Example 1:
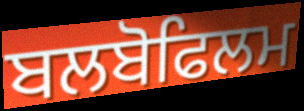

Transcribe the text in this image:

ਬਲਬੋਫਿਲਮ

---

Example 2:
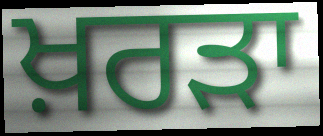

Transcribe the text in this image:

ਖ਼ਰੜਾ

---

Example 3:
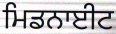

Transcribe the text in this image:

ਮਿਡਨਾਈਟ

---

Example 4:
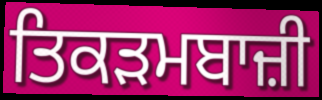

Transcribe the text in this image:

ਤਿਕੜਮਬਾਜ਼ੀ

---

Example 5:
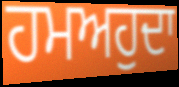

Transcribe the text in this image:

ਹਮਅਹੁਦਾ